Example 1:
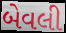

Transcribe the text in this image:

બેવલી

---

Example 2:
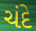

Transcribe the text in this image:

ચંદે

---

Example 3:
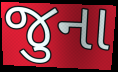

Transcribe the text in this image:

જુના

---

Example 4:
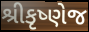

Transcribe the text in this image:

શ્રીકૃષ્ણેજ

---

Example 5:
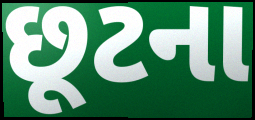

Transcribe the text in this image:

છૂટના